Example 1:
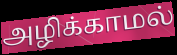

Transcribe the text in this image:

அழிக்காமல்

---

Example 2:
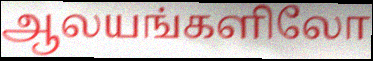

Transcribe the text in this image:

ஆலயங்களிலோ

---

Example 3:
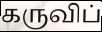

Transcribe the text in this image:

கருவிப்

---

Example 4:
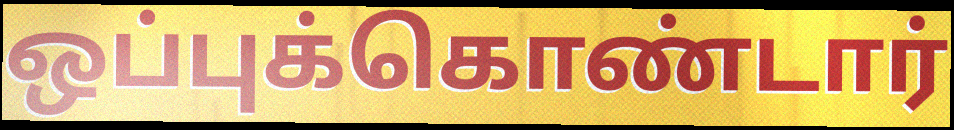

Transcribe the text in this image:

ஒப்புக்கொண்டார்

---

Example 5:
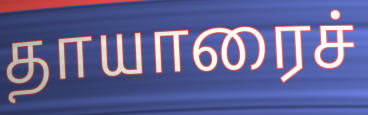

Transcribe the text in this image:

தாயாரைச்